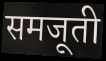
समजूती